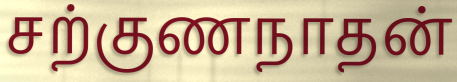
சற்குணநாதன்